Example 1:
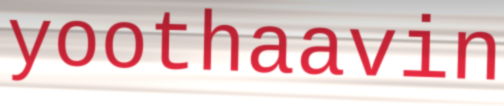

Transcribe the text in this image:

yoothaavin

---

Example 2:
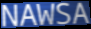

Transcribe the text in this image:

NAWSA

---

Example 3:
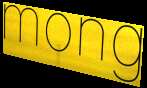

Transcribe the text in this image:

mong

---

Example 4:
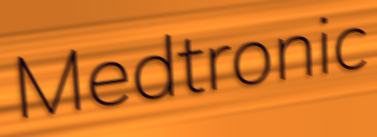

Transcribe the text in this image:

Medtronic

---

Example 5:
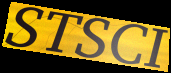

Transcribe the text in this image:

STSCI